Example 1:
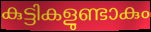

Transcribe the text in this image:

കുട്ടികളുണ്ടാകും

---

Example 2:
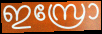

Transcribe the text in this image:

ഇസ്രോ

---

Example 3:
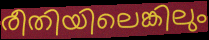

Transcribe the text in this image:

രീതിയിലെങ്കിലും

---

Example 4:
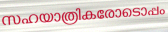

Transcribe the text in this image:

സഹയാത്രികരോടൊപ്പം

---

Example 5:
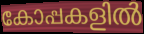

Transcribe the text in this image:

കോപ്പകളിൽ